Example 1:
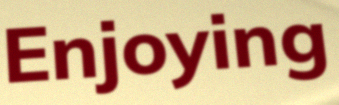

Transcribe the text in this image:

Enjoying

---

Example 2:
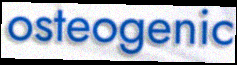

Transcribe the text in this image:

osteogenic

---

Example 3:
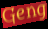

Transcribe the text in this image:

Geng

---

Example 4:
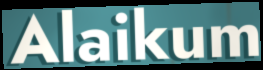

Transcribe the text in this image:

Alaikum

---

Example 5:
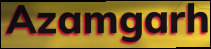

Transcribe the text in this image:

Azamgarh